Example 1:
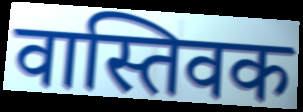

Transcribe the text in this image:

वास्तिवक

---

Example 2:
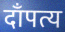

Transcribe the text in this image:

दाँपत्य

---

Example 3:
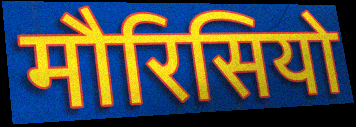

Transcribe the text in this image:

मौरिसियो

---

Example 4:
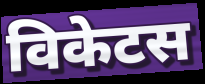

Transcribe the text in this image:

विकेटस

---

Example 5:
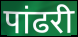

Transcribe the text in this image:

पांढरी